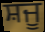
ਸ਼ਜੂ